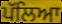
ਪੱਲਿਆ